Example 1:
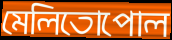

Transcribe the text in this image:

মেলিতোপোল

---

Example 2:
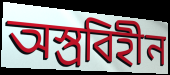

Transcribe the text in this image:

অস্ত্রবিহীন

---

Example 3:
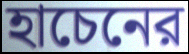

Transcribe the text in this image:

হাচেনের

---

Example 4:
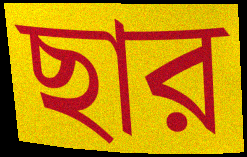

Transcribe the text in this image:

ছার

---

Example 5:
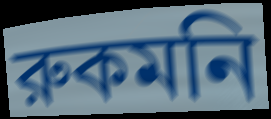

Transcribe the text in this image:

রুকমনি